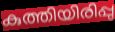
കുത്തിയിരിപ്പു